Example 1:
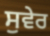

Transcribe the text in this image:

ਸੁਵੇਰ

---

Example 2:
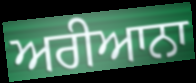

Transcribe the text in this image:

ਅਰੀਆਨਾ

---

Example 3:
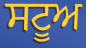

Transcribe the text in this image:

ਸਟੂਅ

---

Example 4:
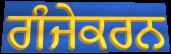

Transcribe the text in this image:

ਗੰਜੇਕਰਨ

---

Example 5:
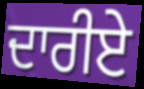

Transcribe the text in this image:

ਦਾਰੀਏ